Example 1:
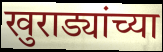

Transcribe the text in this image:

खुराड्यांच्या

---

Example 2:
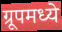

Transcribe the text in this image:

ग्रूपमध्ये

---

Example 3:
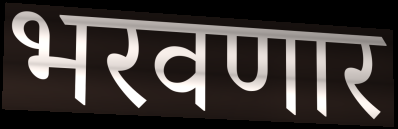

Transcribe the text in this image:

भरवणार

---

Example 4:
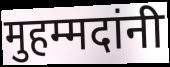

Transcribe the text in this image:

मुहम्मदांनी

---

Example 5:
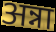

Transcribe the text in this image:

अन्ना